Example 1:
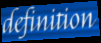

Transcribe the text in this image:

definition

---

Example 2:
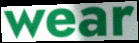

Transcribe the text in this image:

wear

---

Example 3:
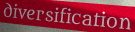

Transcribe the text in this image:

diversification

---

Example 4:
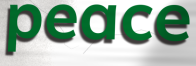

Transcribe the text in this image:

peace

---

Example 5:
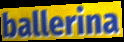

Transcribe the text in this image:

ballerina